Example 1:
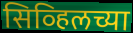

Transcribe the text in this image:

सिव्हिलच्या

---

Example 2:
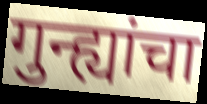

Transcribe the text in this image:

गुन्ह्यांचा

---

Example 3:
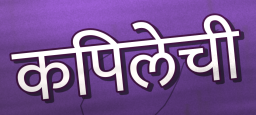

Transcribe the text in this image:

कपिलेची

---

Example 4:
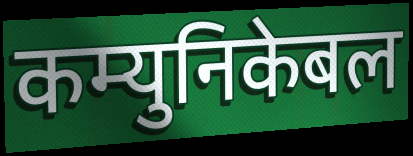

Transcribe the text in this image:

कम्युनिकेबल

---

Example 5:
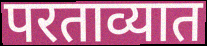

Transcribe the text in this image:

परताव्यात